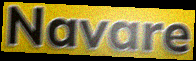
Navare